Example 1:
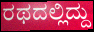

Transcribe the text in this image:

ರಥದಲ್ಲಿದ್ದು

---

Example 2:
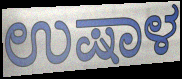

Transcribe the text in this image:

ಉಷಾಳ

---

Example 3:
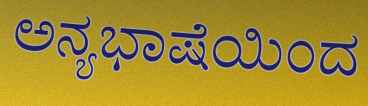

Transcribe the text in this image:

ಅನ್ಯಭಾಷೆಯಿಂದ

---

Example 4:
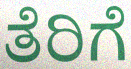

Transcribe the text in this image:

ತೆರಿಗೆ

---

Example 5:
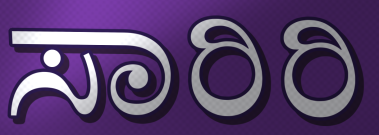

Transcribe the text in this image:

ಸಾರಿರಿ